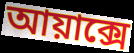
আয়াক্সে